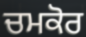
ਚਮਕੋਰ